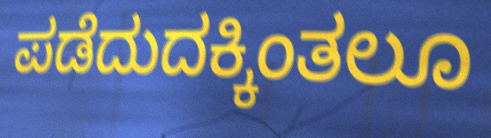
ಪಡೆದುದಕ್ಕಿಂತಲೂ